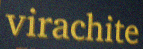
virachite